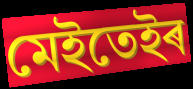
মেইতেইৰ